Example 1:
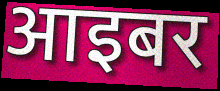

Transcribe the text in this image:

आइबर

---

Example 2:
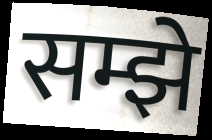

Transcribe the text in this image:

सम्झे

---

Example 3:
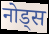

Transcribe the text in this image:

नोड्स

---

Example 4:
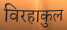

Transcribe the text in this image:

विरहाकुल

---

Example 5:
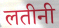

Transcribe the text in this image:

लतीनी